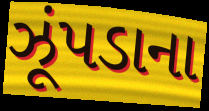
ઝૂંપડાના